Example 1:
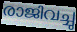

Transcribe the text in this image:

രാജിവച്ചു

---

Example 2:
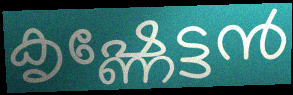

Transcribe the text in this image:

കൃഷ്ണേട്ടൻ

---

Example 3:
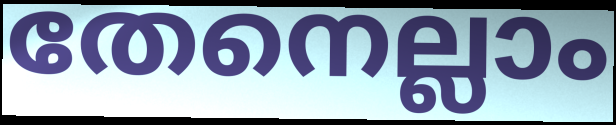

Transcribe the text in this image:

തേനെല്ലാം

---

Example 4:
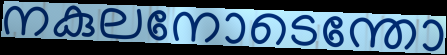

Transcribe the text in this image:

നകുലനോടെന്തോ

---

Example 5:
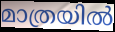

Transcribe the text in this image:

മാത്രയിൽ